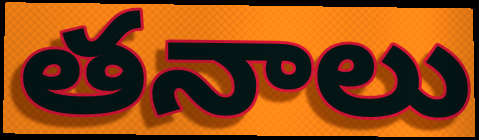
తనాలు